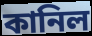
কানিল